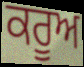
ਕਰੂਅ